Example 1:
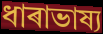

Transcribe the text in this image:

ধাৰাভাষ্য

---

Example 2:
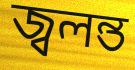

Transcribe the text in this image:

জ্বলন্ত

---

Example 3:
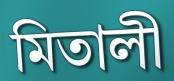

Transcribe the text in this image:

মিতালী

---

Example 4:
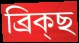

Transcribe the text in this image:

ব্ৰিক্ছ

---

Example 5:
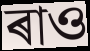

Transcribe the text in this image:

ৰাও